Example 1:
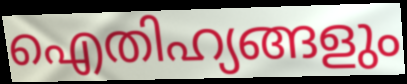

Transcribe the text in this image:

ഐതിഹ്യങ്ങളും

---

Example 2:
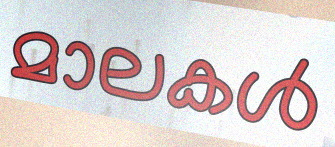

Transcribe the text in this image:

മാലകൾ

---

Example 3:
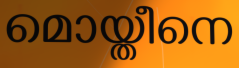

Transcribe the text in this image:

മൊയ്തീനെ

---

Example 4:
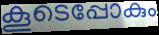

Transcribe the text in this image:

കൂടെപ്പോകും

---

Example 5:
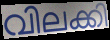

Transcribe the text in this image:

വിലക്കി